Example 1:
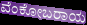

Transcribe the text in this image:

ವೆಂಕೋಬರಾಯ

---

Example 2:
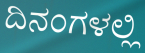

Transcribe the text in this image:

ದಿನಂಗಳಲ್ಲಿ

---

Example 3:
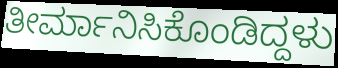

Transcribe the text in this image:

ತೀರ್ಮಾನಿಸಿಕೊಂಡಿದ್ದಳು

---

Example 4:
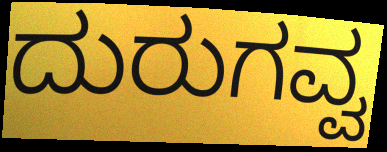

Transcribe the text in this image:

ದುರುಗವ್ವ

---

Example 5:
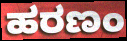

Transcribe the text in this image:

ಹರಣಂ